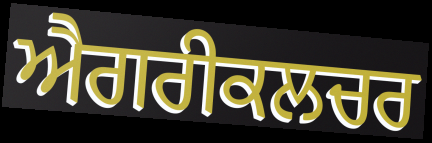
ਐਗਰੀਕਲਚਰ